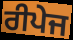
ਰੀਪੇਜ